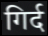
गिर्द